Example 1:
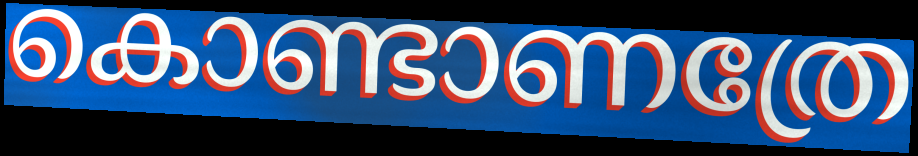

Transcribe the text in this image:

കൊണ്ടാണത്രേ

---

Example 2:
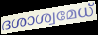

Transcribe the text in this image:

ദശാശ്വമേധ്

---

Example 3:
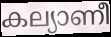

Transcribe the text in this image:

കല്യാണീ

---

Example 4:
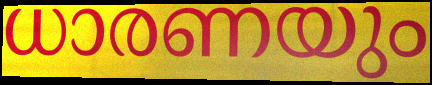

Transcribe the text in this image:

ധാരണയും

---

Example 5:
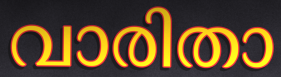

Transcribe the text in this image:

വാരിതാ